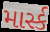
માર્સ્ક